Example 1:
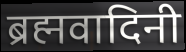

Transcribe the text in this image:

ब्रह्मवादिनी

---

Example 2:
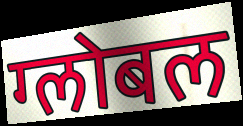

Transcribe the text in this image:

ग्लोबल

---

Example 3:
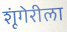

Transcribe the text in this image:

श्रृंगेरीला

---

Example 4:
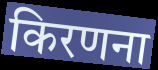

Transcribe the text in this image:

किरणना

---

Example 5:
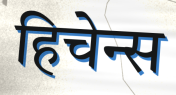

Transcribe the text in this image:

हिचेन्स